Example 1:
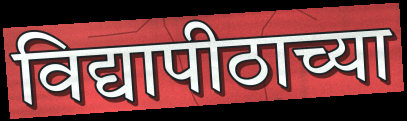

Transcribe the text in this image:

विद्यापीठाच्या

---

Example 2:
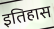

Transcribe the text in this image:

इतिहास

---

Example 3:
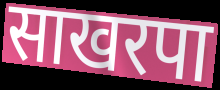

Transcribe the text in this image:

साखरपा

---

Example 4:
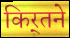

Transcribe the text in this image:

किर्तने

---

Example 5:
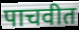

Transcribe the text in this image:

पाचवीत